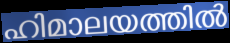
ഹിമാലയത്തിൽ